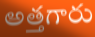
అత్తగారు